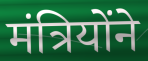
मंत्रियोंने